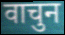
वाचुन